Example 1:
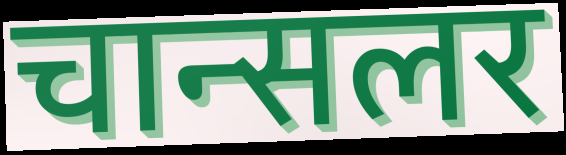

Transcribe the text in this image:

चान्सलर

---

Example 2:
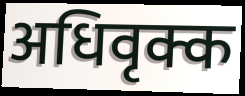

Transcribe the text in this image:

अधिवृक्क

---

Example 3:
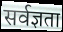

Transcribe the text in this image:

सर्वज्ञता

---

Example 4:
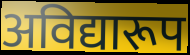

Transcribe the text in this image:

अविद्यारूप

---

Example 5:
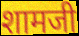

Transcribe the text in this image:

शामजी